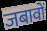
जबावों